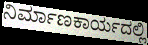
ನಿರ್ಮಾಣಕಾರ್ಯದಲ್ಲಿ